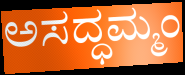
ಅಸದ್ಧಮ್ಮಂ